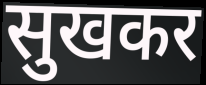
सुखकर